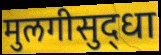
मुलगीसुद्धा